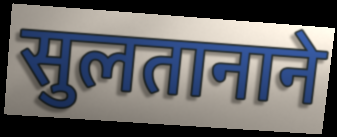
सुलतानाने